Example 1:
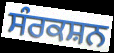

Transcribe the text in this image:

ਸੰਰਕਸ਼ਨ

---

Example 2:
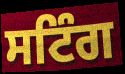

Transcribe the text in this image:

ਸਟਿੰਗ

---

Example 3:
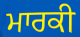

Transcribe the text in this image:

ਮਾਰਕੀ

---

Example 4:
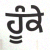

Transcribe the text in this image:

ਹੂੰਕੇ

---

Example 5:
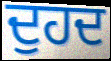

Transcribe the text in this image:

ਦੁਹਦ